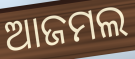
ଆଜମଲ